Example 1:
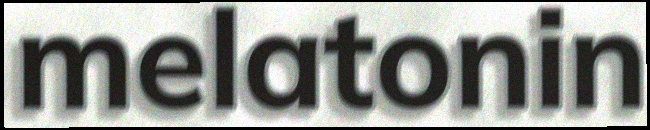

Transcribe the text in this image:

melatonin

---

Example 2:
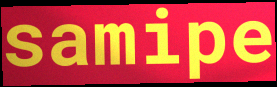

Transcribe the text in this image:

samipe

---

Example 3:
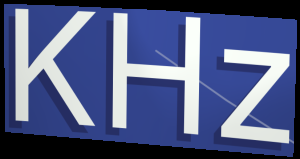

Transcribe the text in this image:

KHz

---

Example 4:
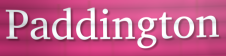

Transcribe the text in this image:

Paddington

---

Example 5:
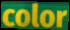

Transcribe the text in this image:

color